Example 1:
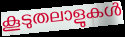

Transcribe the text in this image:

കൂടുതലാളുകൾ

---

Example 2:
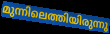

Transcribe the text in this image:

മുന്നിലെത്തിയിരുന്നു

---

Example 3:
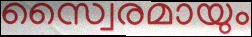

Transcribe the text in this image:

സ്വൈരമായും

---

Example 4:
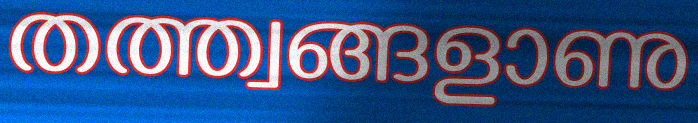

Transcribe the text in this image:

തത്ത്വങ്ങളാണു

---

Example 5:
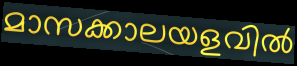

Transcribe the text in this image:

മാസക്കാലയളവിൽ